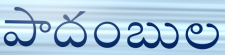
పాదంబుల